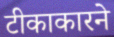
टीकाकारने